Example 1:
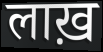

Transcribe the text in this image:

लाख़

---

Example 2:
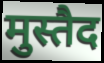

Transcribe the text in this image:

मुस्तैद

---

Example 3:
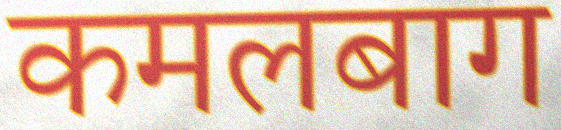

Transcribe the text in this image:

कमलबाग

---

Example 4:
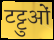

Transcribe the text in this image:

टट्टुओं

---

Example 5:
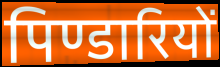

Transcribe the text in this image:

पिण्डारियों